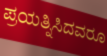
ಪ್ರಯತ್ನಿಸಿದವರೂ